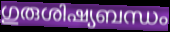
ഗുരുശിഷ്യബന്ധം